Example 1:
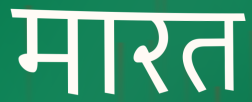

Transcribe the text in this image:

मारत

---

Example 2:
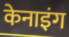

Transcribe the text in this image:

केनाइंग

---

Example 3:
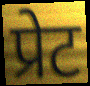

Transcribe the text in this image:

प्रेट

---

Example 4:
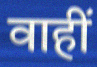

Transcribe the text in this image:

वाहीं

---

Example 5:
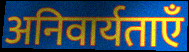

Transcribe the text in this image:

अनिवार्यताएँ